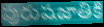
పురుషజాతికి